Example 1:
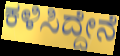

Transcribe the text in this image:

ಕಳಿಸಿದ್ದೇನೆ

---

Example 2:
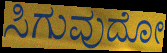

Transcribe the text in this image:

ಸಿಗುವುದೋ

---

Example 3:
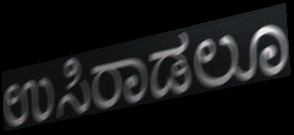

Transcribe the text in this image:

ಉಸಿರಾಡಲೂ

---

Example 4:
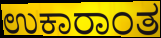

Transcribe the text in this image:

ಉಕಾರಾಂತ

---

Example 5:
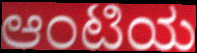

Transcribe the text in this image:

ಆಂಟಿಯ